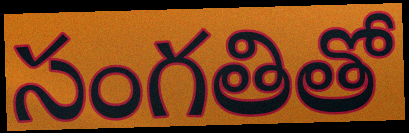
సంగతితో